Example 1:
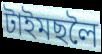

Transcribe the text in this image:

টাইমছলৈ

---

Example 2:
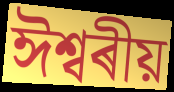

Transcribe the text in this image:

ঈশ্বৰীয়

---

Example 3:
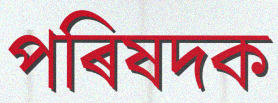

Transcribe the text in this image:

পৰিষদক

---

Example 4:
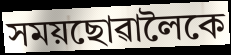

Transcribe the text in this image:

সময়ছোৱালৈকে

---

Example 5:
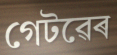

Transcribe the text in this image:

গেটৱেৰ